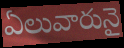
ఏలువారునై